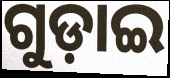
ଗୁଡ଼ାଇ